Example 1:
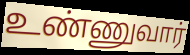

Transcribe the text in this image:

உண்ணுவார்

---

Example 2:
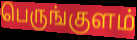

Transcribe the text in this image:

பெருங்குளம்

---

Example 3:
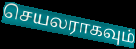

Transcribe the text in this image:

செயலராகவும்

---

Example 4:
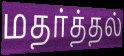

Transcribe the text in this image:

மதர்த்தல்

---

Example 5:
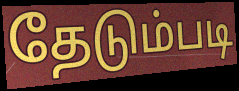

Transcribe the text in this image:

தேடும்படி